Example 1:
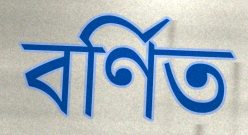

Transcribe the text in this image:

বৰ্ণিত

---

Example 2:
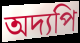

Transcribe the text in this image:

অদ্যপি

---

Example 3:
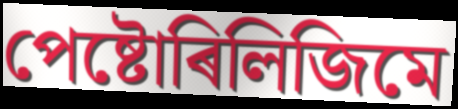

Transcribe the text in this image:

পেষ্টোৰিলিজিমে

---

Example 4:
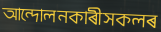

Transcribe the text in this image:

আন্দোলনকাৰীসকলৰ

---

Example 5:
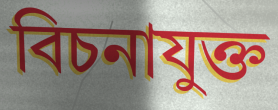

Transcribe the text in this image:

বিচনাযুক্ত